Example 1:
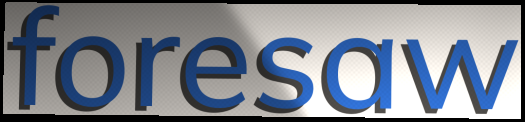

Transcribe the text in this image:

foresaw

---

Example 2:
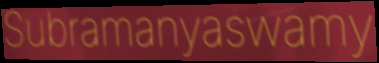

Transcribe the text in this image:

Subramanyaswamy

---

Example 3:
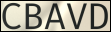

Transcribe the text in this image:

CBAVD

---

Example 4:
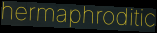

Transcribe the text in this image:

hermaphroditic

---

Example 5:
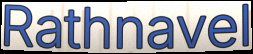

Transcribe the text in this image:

Rathnavel